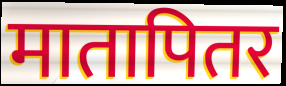
मातापितर